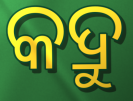
କଦ୍ରୁ